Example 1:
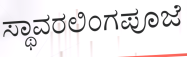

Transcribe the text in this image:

ಸ್ಥಾವರಲಿಂಗಪೂಜೆ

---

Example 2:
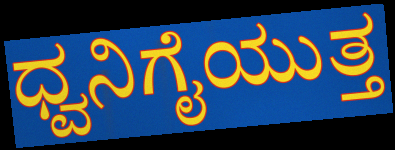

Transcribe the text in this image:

ಧ್ವನಿಗೈಯುತ್ತ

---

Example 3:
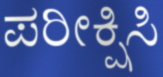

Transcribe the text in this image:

ಪರೀಕ್ಷಿಸಿ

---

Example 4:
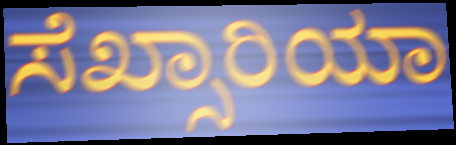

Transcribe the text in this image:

ಸೆಖ್ಸಾರಿಯಾ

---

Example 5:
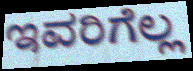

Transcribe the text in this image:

ಇವರಿಗೆಲ್ಲ